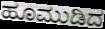
ಹೂಮುಡಿದ